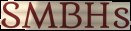
SMBHs